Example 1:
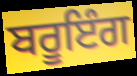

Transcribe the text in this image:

ਬਰੂਇੰਗ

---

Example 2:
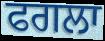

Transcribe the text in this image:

ਫਗਲਾ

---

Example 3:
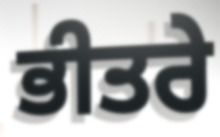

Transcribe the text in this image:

ਭੀਤਰੇ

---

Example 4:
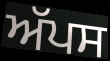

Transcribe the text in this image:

ਅੱਪਸ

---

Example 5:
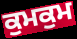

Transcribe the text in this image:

ਕੁਮਕੁਮ